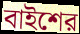
বাইশের